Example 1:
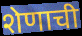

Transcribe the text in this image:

शेणाची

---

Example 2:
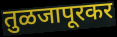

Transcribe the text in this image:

तुळजापूरकर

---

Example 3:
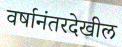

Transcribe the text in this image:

वर्षानंतरदेखील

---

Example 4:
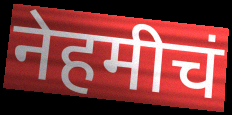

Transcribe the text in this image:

नेहमीचं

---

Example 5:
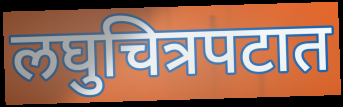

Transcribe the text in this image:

लघुचित्रपटात